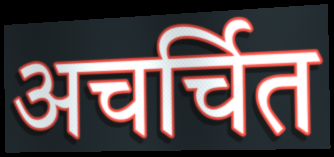
अचर्चित